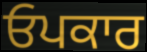
ਓਪਕਾਰ